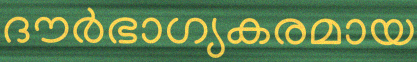
ദൗർഭാഗ്യകരമായ